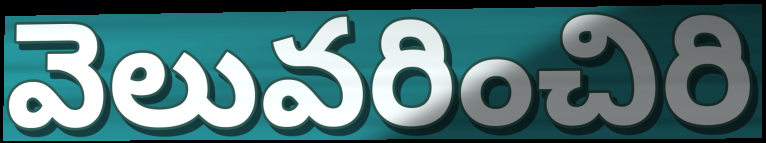
వెలువరించిరి